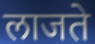
लाजते